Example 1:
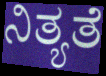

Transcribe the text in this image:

ನಿತ್ಯತೆ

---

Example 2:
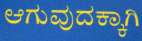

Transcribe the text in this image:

ಆಗುವುದಕ್ಕಾಗಿ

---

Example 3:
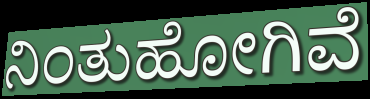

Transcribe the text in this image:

ನಿಂತುಹೋಗಿವೆ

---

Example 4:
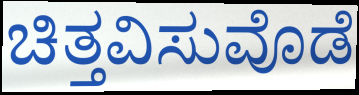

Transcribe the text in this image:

ಚಿತ್ತವಿಸುವೊಡೆ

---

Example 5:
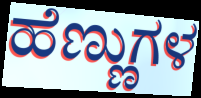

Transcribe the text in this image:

ಹೆಣ್ಣುಗಳ